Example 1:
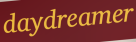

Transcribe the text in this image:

daydreamer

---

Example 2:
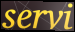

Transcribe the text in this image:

servi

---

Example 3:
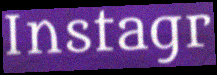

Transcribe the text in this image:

Instagr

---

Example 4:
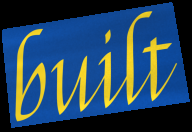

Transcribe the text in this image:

built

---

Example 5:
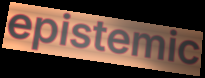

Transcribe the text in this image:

epistemic